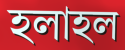
হলাহল